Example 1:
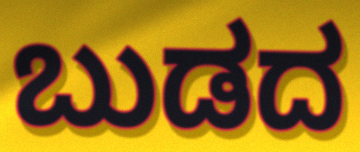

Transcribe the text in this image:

ಬುಡದ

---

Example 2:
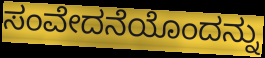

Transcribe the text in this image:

ಸಂವೇದನೆಯೊಂದನ್ನು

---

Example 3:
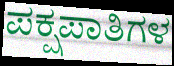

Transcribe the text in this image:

ಪಕ್ಷಪಾತಿಗಳ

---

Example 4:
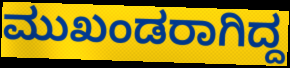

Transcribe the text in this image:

ಮುಖಂಡರಾಗಿದ್ದ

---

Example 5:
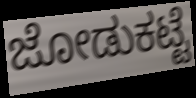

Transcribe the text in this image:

ಜೋಡುಕಟ್ಟೆ